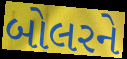
બોલરને